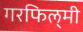
गरफिल्मी